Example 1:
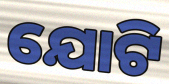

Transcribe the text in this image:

ଯୋଟି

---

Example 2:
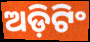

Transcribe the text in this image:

ଅଡ଼ିଟିଂ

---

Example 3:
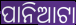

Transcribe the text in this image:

ପାନିଆଟା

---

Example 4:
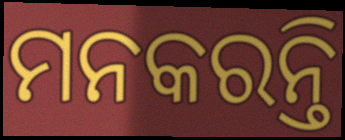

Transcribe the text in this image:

ମନକରନ୍ତି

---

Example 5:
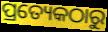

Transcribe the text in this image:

ପ୍ରତ୍ୟେକଠାରୁ